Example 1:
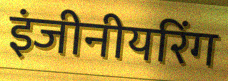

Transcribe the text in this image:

इंजीनीयरिंग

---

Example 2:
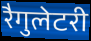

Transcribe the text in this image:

रैगुलेटरी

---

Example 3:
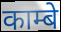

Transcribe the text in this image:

काम्बे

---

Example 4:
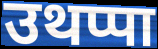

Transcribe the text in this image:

उथप्पा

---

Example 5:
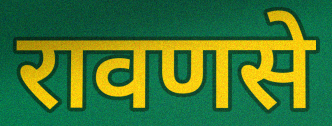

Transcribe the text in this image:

रावणसे